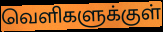
வெளிகளுக்குள்